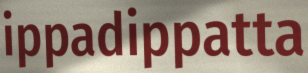
ippadippatta